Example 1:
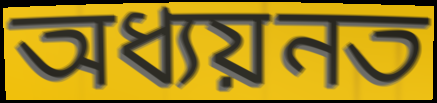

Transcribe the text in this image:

অধ্যয়নত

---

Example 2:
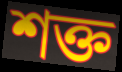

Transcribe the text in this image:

শক্ত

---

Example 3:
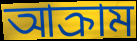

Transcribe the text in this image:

আক্ৰাম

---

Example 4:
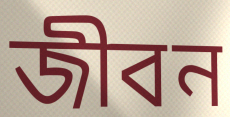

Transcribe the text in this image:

জীবন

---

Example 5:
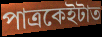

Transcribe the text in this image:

পাত্ৰকেইটাত